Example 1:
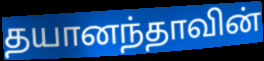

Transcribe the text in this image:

தயானந்தாவின்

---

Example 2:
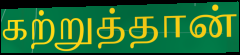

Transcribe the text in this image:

கற்றுத்தான்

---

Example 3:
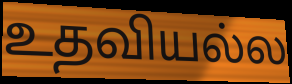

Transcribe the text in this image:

உதவியல்ல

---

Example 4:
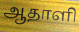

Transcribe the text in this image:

ஆதாளி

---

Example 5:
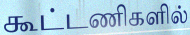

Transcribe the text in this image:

கூட்டணிகளில்